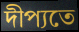
দীপ্যতে